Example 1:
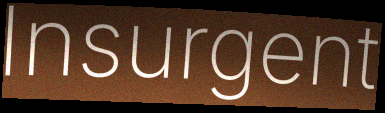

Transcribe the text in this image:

Insurgent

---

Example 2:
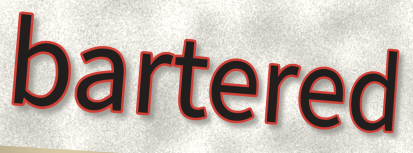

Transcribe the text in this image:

bartered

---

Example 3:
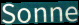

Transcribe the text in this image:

Sonne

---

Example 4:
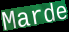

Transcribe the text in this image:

Marde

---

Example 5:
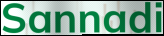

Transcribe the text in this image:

Sannadi